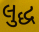
લુદ્ધ